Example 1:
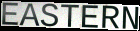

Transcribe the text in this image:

EASTERN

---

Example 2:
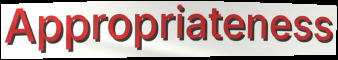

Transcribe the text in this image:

Appropriateness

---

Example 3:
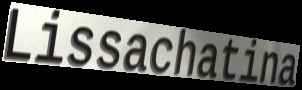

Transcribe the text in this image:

Lissachatina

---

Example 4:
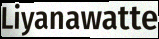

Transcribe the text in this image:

Liyanawatte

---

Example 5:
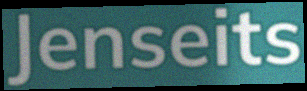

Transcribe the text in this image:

Jenseits